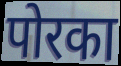
पोरका